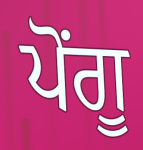
ਪੋਂਗੂ